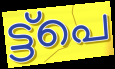
ട്ട്പെ